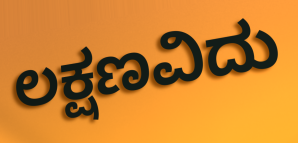
ಲಕ್ಷಣವಿದು